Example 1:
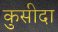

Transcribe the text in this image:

कुसीदा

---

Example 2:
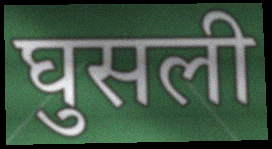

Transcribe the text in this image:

घुसली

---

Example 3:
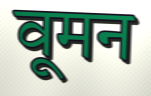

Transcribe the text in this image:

वूमन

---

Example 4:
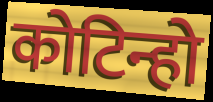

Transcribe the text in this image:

कोटिन्हो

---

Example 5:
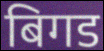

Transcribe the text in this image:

बिगड